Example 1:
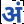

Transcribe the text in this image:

अं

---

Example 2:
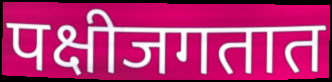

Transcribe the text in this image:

पक्षीजगतात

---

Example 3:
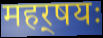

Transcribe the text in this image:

महर्षयः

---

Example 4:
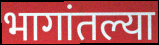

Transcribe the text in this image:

भागांतल्या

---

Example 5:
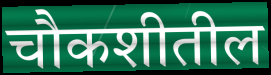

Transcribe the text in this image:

चौकशीतील